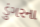
ડુંગરના